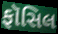
ફૉસિલ